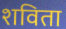
शविता